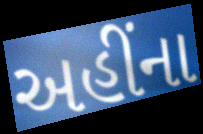
અહીંના